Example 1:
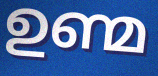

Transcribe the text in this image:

ഉണ്മ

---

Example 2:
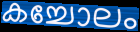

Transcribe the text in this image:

കച്ചോലം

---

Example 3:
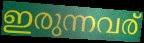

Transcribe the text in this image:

ഇരുന്നവര്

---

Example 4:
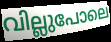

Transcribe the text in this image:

വില്ലുപോലെ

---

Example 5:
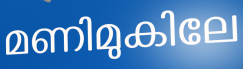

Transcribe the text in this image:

മണിമുകിലേ